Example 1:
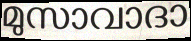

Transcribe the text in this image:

മുസാവാദാ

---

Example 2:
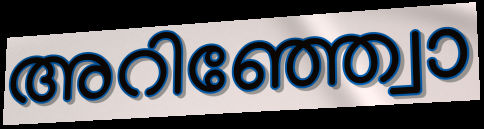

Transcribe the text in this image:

അറിഞ്ഞ്വോ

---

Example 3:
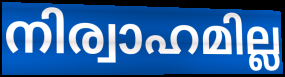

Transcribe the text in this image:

നിര്വാഹമില്ല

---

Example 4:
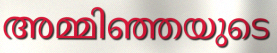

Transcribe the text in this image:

അമ്മിഞ്ഞയുടെ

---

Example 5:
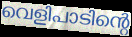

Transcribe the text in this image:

വെളിപാടിന്റെ